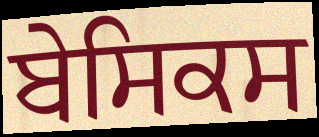
ਬੇਸਿਕਸ